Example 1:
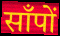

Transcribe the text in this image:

साँपों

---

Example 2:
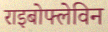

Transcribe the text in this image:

राइबोफ्लेविन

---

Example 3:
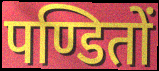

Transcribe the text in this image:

पण्डितों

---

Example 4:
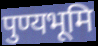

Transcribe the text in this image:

पुण्यभूमि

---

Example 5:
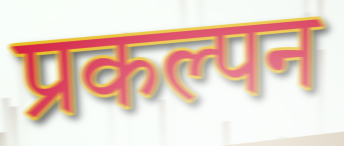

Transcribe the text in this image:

प्रकल्पन